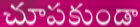
చూపకుండా